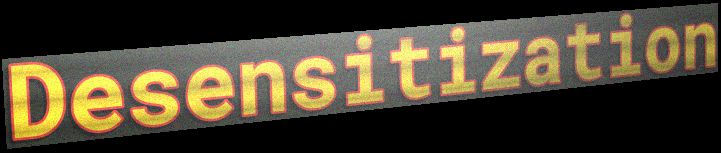
Desensitization